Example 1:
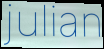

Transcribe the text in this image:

julian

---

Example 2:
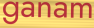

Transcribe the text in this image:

ganam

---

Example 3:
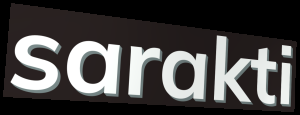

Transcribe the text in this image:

sarakti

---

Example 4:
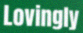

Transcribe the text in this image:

Lovingly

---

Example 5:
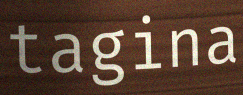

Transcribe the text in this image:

tagina